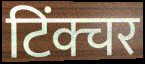
टिंक्चर